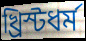
খ্রিস্টধর্ম